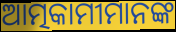
ଆତ୍ମକାମୀମାନଙ୍କ